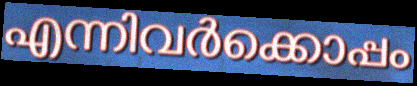
എന്നിവർക്കൊപ്പം